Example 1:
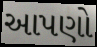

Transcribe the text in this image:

આપણો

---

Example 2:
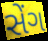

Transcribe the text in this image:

સેંગ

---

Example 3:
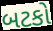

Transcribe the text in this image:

બટકો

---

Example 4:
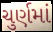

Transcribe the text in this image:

ચુર્ણમાં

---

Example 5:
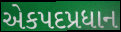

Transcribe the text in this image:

એકપદપ્રધાન